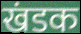
खंडक